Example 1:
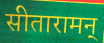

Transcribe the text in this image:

सीतारामन्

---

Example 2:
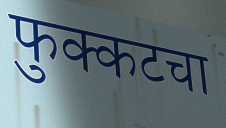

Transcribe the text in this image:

फुक्कटचा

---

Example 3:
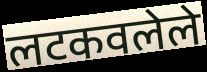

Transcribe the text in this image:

लटकवलेले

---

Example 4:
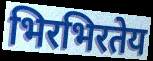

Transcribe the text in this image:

भिरभिरतेय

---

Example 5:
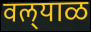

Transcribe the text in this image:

वल्याळ